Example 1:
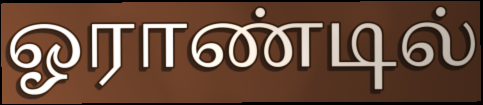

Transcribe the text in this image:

ஓராண்டில்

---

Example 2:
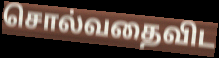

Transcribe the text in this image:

சொல்வதைவிட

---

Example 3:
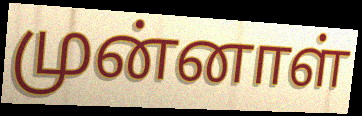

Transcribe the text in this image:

முன்னாள்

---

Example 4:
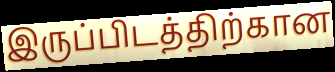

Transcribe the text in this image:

இருப்பிடத்திற்கான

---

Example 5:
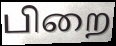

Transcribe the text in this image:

பிறை